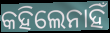
କହିଲେନାହିଁ